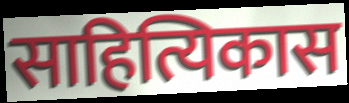
साहित्यिकास